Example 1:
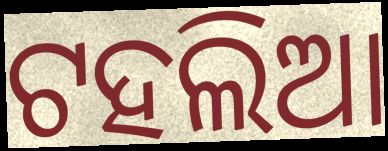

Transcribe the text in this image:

ଟହଲିଆ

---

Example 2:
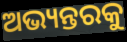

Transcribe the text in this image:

ଅଭ୍ୟନ୍ତରକୁ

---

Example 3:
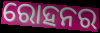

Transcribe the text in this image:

ରୋହନର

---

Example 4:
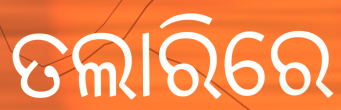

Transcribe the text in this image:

ତଲାରିରେ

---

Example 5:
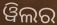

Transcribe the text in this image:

ୱିଲର